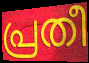
പ്രതീ